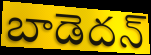
బాడెదన్